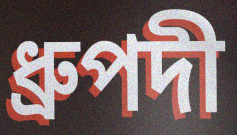
ধ্রুপদী